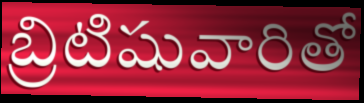
బ్రిటిషువారితో